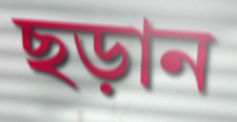
ছড়ান